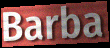
Barba